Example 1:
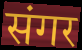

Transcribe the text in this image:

संगर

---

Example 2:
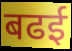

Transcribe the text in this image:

बढई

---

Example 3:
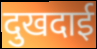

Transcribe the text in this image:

दुखदाई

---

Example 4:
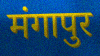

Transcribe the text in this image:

मंगापुर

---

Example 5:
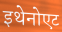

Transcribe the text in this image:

इथेनोएट